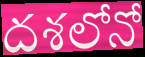
దశలోనో